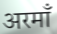
अरमाँ